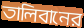
তালিবানের